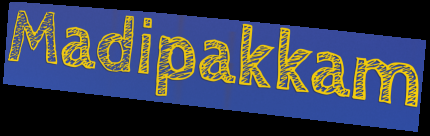
Madipakkam